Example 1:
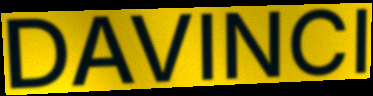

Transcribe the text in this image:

DAVINCI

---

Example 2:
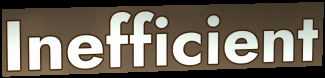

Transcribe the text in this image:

Inefficient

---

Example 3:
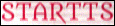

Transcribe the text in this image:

STARTTS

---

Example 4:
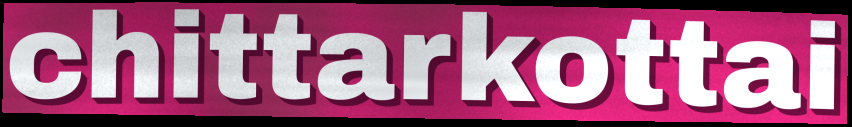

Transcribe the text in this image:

chittarkottai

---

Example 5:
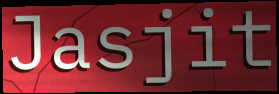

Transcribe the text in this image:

Jasjit